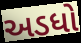
અડધો